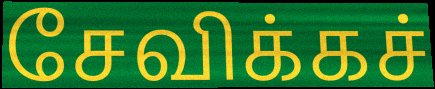
சேவிக்கச்